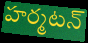
హర్మటన్